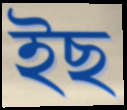
ইছ